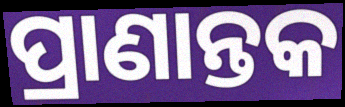
ପ୍ରାଣାନ୍ତକ